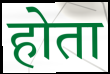
होता